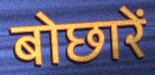
बोछारें